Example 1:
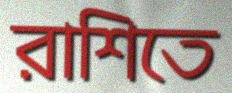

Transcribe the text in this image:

রাশিতে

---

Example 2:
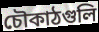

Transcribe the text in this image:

চৌকাঠগুলি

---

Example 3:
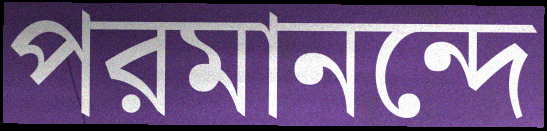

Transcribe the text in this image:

পরমানন্দে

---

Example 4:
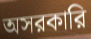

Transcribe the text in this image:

অসরকারি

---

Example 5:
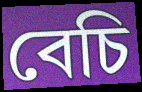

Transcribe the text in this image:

বেচি